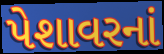
પેશાવરનાં